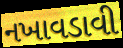
નખાવડાવી